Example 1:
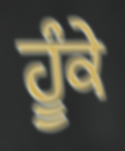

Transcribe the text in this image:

ਹੂੰਕੇ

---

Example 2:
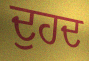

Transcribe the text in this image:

ਦੁਹਦ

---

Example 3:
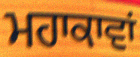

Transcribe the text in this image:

ਮਹਾਕਾਵਾਂ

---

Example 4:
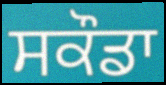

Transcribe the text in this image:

ਸਕੌਡਾ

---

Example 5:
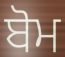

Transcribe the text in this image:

ਬੋਮ